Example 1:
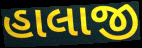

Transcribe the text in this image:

હાલાજી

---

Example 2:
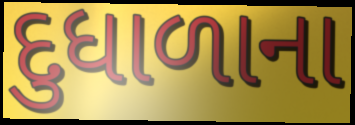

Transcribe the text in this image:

દુધાળાના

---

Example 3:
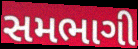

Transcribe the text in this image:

સમભાગી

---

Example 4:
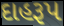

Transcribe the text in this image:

દાહરૂપ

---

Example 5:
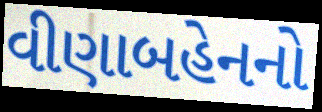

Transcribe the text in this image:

વીણાબહેનનો